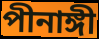
পীনাঙ্গী